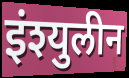
इंश्युलीन